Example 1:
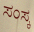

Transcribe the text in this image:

ಸಂಸ್ಕ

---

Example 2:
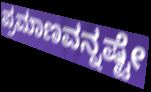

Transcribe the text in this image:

ಪ್ರಮಾಣವನ್ನಷ್ಟೇ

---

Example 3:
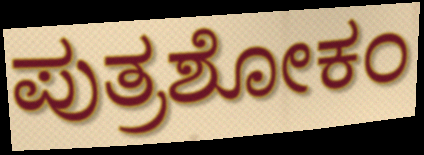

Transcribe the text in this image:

ಪುತ್ರಶೋಕಂ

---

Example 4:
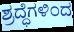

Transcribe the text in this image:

ಶ್ರದ್ಧೆಗಳಿಂದ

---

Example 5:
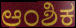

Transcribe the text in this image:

ಆಂಶಿಕ